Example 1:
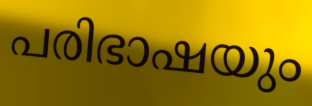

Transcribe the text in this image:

പരിഭാഷയും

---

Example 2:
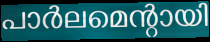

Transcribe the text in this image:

പാർലമെന്റായി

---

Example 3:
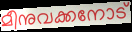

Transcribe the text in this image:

മീനുവക്കനോട്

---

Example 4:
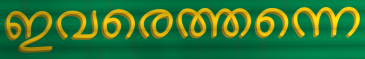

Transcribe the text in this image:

ഇവരെത്തന്നെ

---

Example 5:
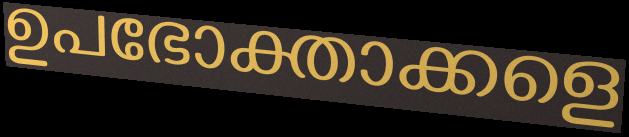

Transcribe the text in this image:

ഉപഭോക്താക്കളെ